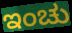
ಇಂಚು